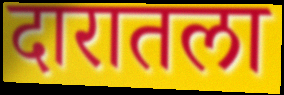
दारातला